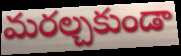
మరల్చకుండా